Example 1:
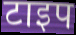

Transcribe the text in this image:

टाइप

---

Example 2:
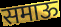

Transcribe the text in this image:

समाऊ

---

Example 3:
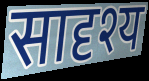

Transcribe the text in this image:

सादृश्य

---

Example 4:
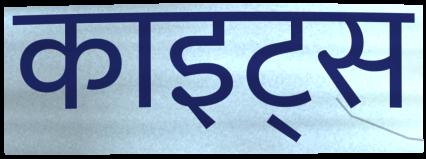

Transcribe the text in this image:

काइट्स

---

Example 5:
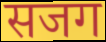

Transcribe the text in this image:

सजग